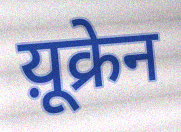
य़ूक्रेन